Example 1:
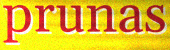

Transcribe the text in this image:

prunas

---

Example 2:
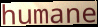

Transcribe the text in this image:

humane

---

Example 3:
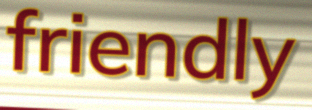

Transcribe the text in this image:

friendly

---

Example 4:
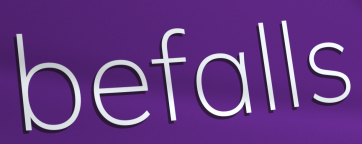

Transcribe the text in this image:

befalls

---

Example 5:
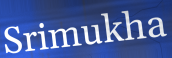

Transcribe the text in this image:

Srimukha